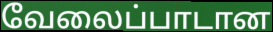
வேலைப்பாடான